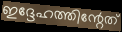
ഇദ്ദേഹത്തിന്റേത്